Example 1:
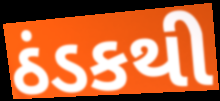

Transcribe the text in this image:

ઠંડકથી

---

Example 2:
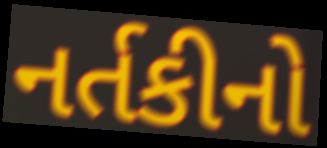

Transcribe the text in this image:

નર્તકીનો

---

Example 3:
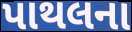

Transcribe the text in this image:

પાથલના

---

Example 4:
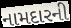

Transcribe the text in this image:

નામદારની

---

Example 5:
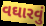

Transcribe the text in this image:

વઘારવું